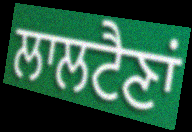
ਲਾਲਟੈਣਾਂ